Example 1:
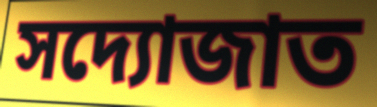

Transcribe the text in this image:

সদ্যোজাত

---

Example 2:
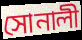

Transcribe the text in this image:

সোনালী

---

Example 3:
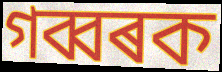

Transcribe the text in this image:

গব্বৰক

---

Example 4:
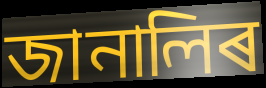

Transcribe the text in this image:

জানালিৰ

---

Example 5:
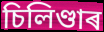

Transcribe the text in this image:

চিলিণ্ডাৰ